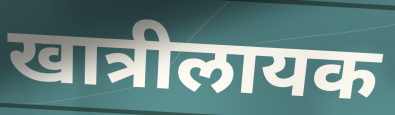
खात्रीलायक